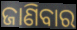
ଜାଣିବାର